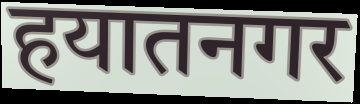
हयातनगर